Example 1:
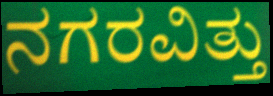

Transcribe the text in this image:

ನಗರವಿತ್ತು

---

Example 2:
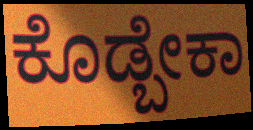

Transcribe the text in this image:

ಕೊಡ್ಬೇಕಾ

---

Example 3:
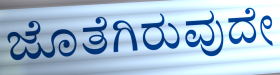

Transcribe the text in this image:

ಜೊತೆಗಿರುವುದೇ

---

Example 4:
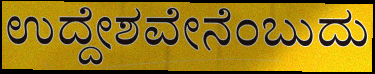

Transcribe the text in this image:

ಉದ್ದೇಶವೇನೆಂಬುದು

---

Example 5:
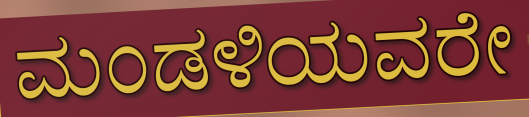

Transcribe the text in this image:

ಮಂಡಳಿಯವರೇ